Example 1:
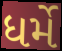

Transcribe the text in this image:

ધર્મે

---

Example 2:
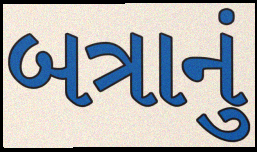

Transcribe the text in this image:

બત્રાનું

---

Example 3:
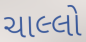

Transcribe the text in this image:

ચાલ્લો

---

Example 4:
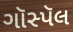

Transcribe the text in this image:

ગૉસ્પૅલ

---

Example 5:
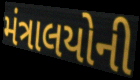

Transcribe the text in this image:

મંત્રાલયોની